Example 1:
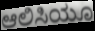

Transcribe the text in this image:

ಆಲಿಸಿಯೂ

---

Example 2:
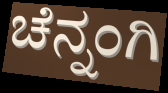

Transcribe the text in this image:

ಚೆನ್ನಂಗಿ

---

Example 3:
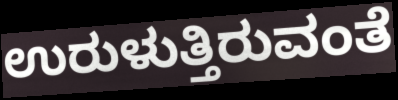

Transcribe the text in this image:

ಉರುಳುತ್ತಿರುವಂತೆ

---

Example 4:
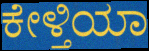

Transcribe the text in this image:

ಕೇಳ್ತಿಯಾ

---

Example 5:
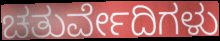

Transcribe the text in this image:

ಚತುರ್ವೇದಿಗಳು